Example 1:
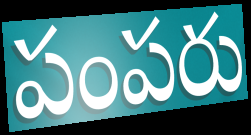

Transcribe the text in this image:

పంపరు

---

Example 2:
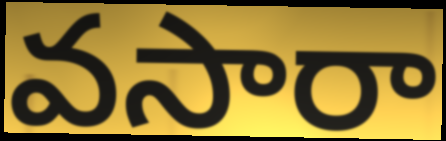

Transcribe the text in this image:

వసారా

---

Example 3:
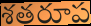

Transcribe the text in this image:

శతరూప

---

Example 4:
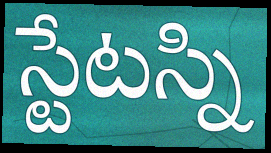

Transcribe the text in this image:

స్టేటస్ని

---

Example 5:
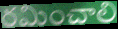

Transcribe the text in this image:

రమించాలి